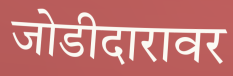
जोडीदारावर